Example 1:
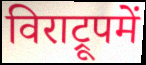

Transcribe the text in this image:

विराट्रूपमें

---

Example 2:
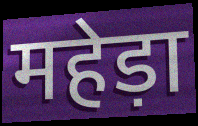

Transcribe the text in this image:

महेड़ा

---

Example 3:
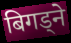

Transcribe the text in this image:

बिगड्ने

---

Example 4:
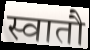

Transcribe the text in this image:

स्वातौ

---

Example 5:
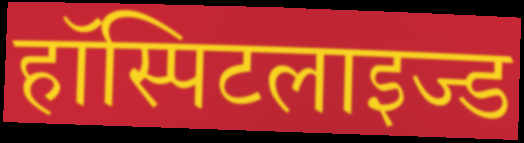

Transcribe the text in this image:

हॉस्पिटलाइज्ड